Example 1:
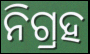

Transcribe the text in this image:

ନିଗ୍ରହ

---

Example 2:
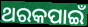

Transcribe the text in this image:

ଥରକପାଇଁ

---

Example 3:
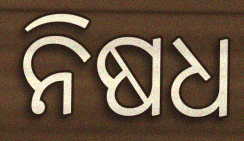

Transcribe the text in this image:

ନିଷଧ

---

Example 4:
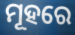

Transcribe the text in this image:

ମୂହରେ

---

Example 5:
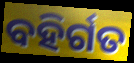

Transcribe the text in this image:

ବହିର୍ଗତ